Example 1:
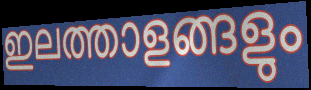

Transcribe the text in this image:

ഇലത്താളങ്ങളും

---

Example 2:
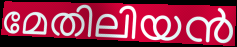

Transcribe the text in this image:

മേതിലിയൻ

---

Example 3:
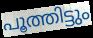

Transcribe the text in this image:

പൂത്തിട്ടും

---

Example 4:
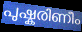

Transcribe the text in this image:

പുഷ്കരിണീം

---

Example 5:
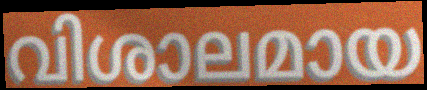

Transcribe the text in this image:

വിശാലമായ